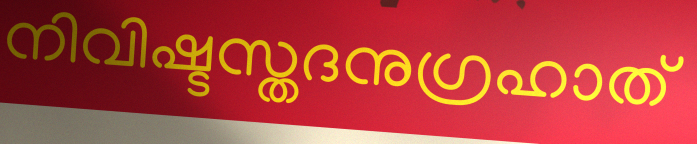
നിവിഷ്ടസ്തദനുഗ്രഹാത്